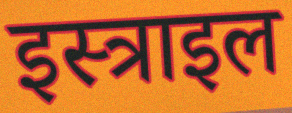
इस्त्राइल